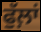
ਫੁੱਲ਼ਾਂ